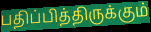
பதிப்பித்திருக்கும்